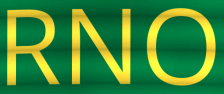
RNO